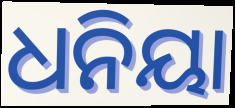
ଧନିୟା